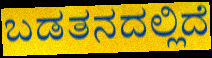
ಬಡತನದಲ್ಲಿದೆ